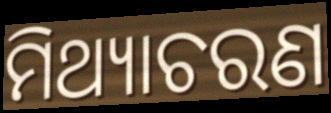
ମିଥ୍ୟାଚରଣ